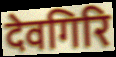
देवगिरि